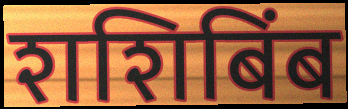
शशिबिंब